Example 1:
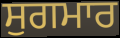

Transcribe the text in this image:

ਸੁਗਮਾਰ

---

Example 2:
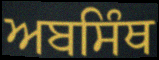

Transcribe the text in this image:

ਅਬਸਿੰਥ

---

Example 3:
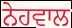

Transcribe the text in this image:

ਨੇਹਵਾਲ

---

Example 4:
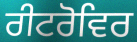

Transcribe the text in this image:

ਰੀਟਰੋਵਿਰ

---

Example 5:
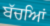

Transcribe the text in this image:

ਬੱਚਆਿਂ